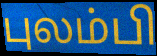
புலம்பி